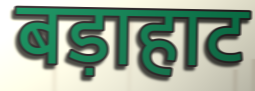
बड़ाहाट